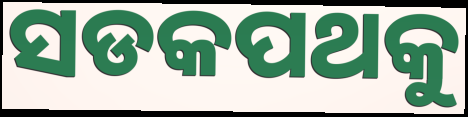
ସଡକପଥକୁ